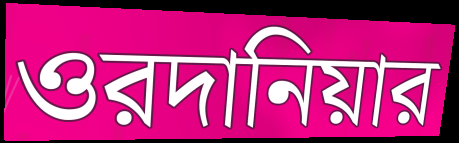
ওরদানিয়ার